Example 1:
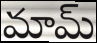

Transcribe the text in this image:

మామ్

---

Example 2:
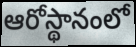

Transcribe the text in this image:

ఆరోస్థానంలో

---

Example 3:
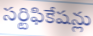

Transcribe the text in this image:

సర్టిఫికేషన్లు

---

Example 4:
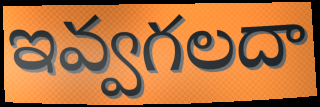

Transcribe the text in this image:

ఇవ్వగలదా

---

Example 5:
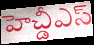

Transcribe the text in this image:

హెచ్డీఎస్